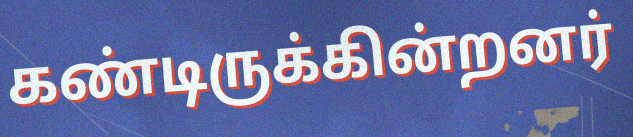
கண்டிருக்கின்றனர்